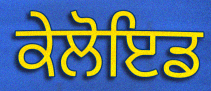
ਕੇਲੋਇਡ